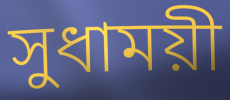
সুধাময়ী